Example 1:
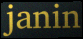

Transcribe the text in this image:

janin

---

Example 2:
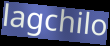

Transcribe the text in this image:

lagchilo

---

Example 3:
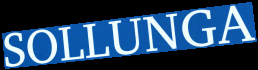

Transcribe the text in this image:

SOLLUNGA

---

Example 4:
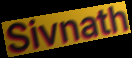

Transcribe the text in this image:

Sivnath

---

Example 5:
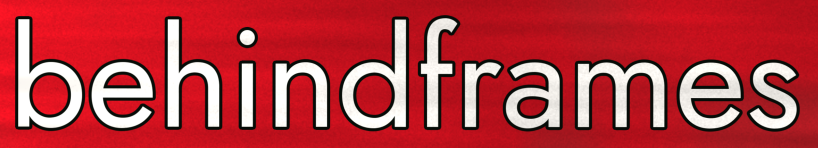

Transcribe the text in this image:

behindframes